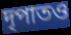
দৃপাতও